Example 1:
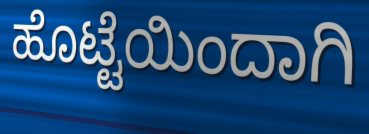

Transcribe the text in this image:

ಹೊಟ್ಟೆಯಿಂದಾಗಿ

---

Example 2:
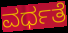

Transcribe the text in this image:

ವರ್ಧತೆ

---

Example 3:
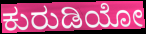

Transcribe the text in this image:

ಕುರುಡಿಯೋ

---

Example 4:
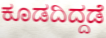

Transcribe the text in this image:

ಕೂಡದಿದ್ದಡೆ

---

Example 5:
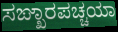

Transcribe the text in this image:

ಸಙ್ಖಾರಪಚ್ಚಯಾ